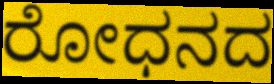
ರೋಧನದ